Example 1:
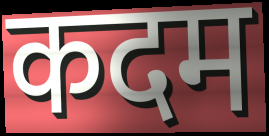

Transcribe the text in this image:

कदम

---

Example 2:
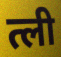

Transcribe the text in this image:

त्ली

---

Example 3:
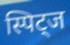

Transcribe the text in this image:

स्पिट्ज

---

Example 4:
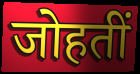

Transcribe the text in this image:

जोहतीं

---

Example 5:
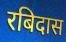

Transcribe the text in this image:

रबिदास